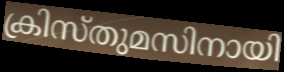
ക്രിസ്തുമസിനായി